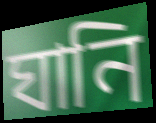
ঘানি